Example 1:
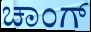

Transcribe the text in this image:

ಚಾಂಗ್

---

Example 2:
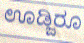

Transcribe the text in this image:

ಊಡ್ಜಿರೂ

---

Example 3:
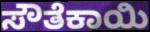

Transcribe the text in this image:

ಸೌತೆಕಾಯಿ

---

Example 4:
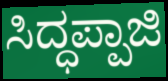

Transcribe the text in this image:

ಸಿದ್ಧಪ್ಪಾಜಿ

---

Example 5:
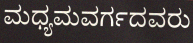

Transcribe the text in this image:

ಮಧ್ಯಮವರ್ಗದವರು